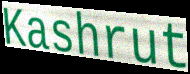
Kashrut